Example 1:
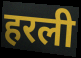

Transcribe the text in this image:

हरली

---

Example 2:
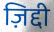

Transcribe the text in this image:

ज़िद्दी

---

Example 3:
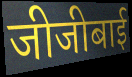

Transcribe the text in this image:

जीजीबाई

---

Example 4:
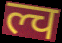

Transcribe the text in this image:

ल्च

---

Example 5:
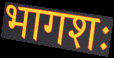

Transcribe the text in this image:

भागशः